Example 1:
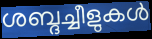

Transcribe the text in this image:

ശബ്ദച്ചീളുകൾ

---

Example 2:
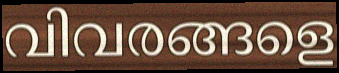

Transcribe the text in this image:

വിവരങ്ങളെ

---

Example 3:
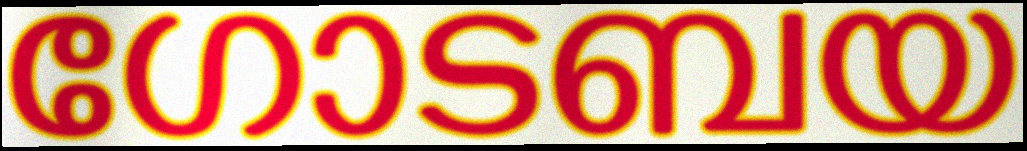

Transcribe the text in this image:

ഗോടബയ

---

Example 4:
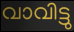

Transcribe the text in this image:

വാവിട്ടു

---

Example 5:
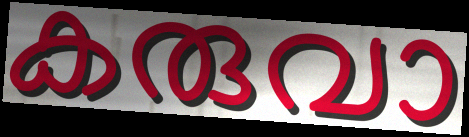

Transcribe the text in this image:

കരുവാ